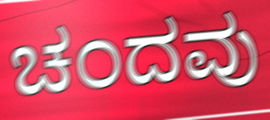
ಚಂದವು